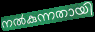
നൽകുന്നതായി